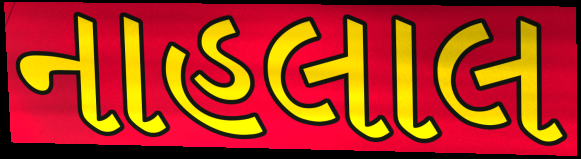
નાહલાલ